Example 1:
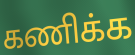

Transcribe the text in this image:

கணிக்க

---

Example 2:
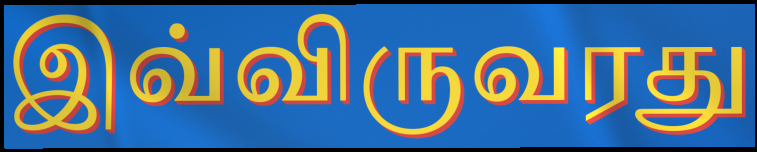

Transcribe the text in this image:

இவ்விருவரது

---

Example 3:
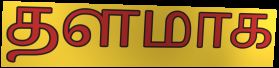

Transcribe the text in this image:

தளமாக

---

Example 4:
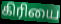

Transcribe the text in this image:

கிரியை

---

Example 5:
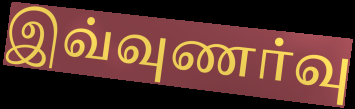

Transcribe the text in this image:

இவ்வுணர்வு